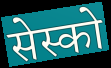
सेस्को